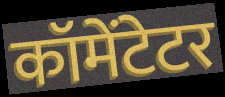
कॉमेंटेटर